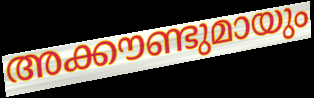
അക്കൗണ്ടുമായും